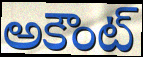
అకౌంట్